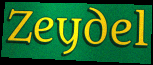
Zeydel